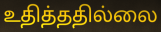
உதித்ததில்லை